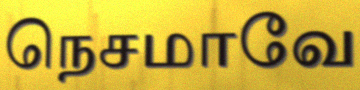
நெசமாவே